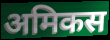
अमिकस